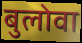
बुलोवा